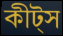
কীট্স